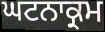
ਘਟਨਾਕ੍ਰਮ